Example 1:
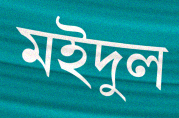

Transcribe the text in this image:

মইদুল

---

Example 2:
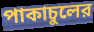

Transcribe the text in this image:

পাকাচুলের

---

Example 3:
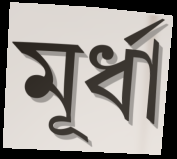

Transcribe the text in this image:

মূর্ধা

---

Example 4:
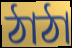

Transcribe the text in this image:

ঠাঠা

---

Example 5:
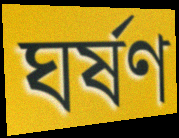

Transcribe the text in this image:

ঘর্ষণ